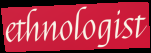
ethnologist